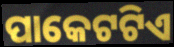
ପାକେଟଟିଏ